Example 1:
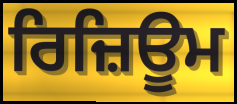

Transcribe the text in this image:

ਰਿਜ਼ਿਊਮ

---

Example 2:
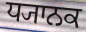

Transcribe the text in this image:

ਧ੍ਯਾਨਕ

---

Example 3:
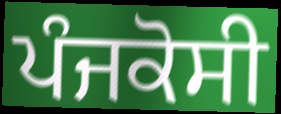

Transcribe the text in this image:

ਪੰਜਕੋਸੀ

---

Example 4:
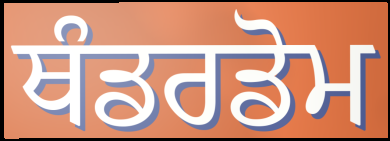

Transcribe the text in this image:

ਥੰਡਰਡੋਮ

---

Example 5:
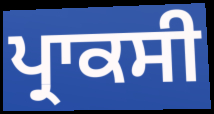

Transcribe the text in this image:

ਪ੍ਰਾਕਸੀ